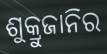
ଶୁକ୍ରୁଜାନିର